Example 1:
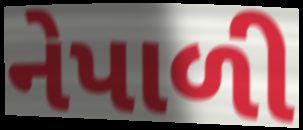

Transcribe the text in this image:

નેપાળી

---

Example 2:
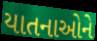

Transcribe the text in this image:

યાતનાઓને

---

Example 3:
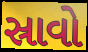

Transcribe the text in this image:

સ્રાવો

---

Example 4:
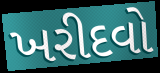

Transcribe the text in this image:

ખરીદવો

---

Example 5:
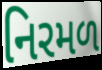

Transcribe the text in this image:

નિરમળ